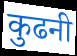
कुढनी